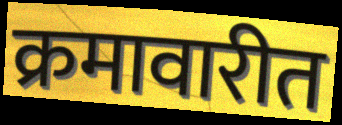
क्रमावारीत